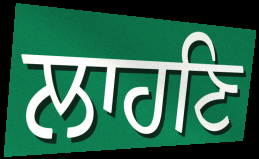
ਲਾਹਣਿ